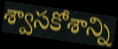
శ్వాసకోశాన్ని